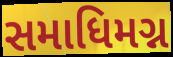
સમાધિમગ્ન